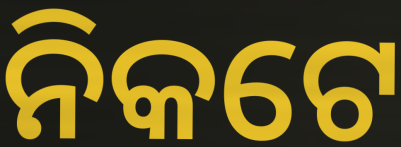
ନିକଟେ